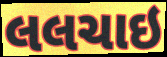
લલચાઇ